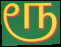
ரூ